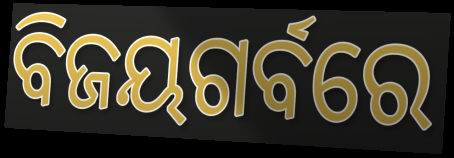
ବିଜୟଗର୍ବରେ